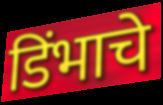
डिंभाचे